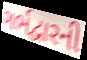
ગર્ભદ્વારની